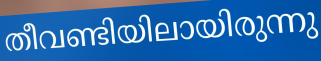
തീവണ്ടിയിലായിരുന്നു